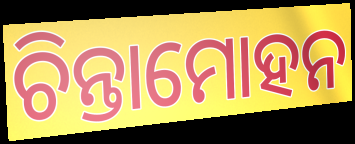
ଚିନ୍ତାମୋହନ